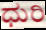
ಧುರಿ